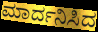
ಮಾರ್ದನಿಸಿದ